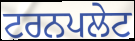
ਟਰਨਪਲੇਟ